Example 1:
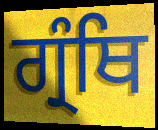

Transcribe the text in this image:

ਗ੍ਰੰਥਿ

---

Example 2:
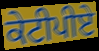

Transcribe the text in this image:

ਕੇਟੀਪੀਏ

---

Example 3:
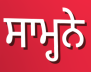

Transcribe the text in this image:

ਸਾਮ੍ਹਨੇ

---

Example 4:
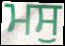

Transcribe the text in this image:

ਮਸੁ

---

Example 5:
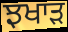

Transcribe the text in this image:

ਝਖਾੜ